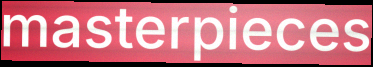
masterpieces